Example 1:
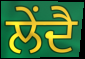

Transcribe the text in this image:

ਲੇਂਦੈ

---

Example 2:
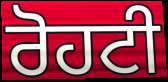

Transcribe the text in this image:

ਰੋਹਟੀ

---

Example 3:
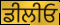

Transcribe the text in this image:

ਡੀਲੀਓ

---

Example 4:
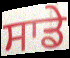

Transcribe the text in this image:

ਸਾਡੇ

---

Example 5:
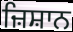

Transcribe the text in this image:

ਜ਼ਿਸ਼ਾਨ